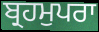
ਬ੍ਰਹਮੁਪਰਾ